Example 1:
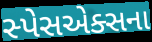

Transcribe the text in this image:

સ્પેસએક્સના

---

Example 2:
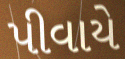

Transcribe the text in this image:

પીવાયે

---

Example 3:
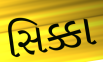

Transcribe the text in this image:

સિક્કા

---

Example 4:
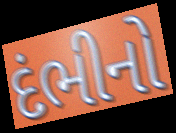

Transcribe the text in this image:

દંભીનો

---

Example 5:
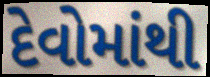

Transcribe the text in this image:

દેવોમાંથી